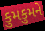
કુમકુમને